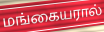
மங்கையரால்